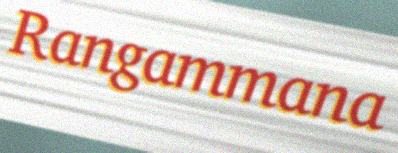
Rangammana